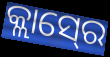
କ୍ଲାସ୍‍ରେ